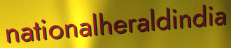
nationalheraldindia